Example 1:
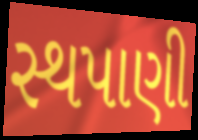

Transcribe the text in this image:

સ્થપાણી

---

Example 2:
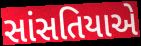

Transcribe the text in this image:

સાંસતિયાએ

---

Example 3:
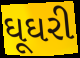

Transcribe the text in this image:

ઘૂઘરી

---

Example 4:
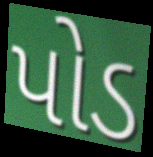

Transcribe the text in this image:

પોડ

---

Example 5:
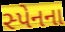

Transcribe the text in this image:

સ્પેનના